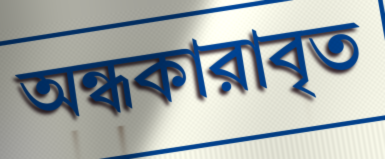
অন্ধকারাবৃত